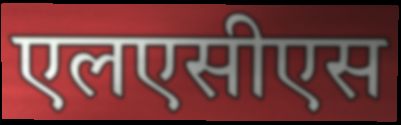
एलएसीएस